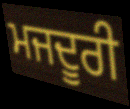
ਮਜਦੂਰੀ